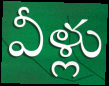
వీళ్లు